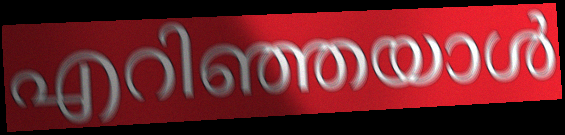
എറിഞ്ഞയാൾ